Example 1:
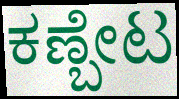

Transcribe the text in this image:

ಕಣ್ಬೇಟ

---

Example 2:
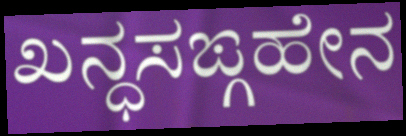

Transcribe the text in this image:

ಖನ್ಧಸಙ್ಗಹೇನ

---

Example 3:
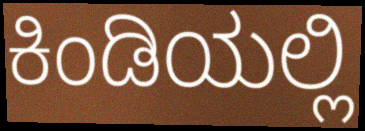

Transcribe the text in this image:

ಕಿಂಡಿಯಲ್ಲಿ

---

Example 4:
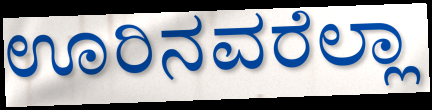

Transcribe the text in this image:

ಊರಿನವರೆಲ್ಲಾ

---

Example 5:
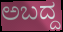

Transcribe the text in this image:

ಅಬದ್ದ